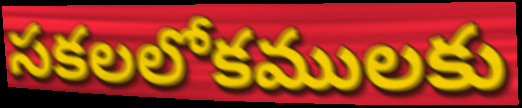
సకలలోకములకు